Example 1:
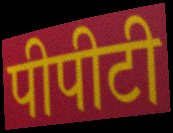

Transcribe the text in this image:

पीपीटी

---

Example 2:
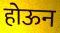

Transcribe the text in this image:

होऊन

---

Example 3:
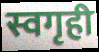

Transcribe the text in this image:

स्वगृही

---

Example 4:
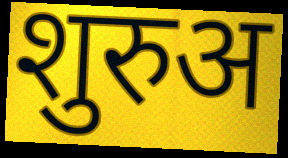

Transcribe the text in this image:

शुरुअ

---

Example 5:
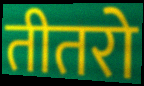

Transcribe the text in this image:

तीतरो